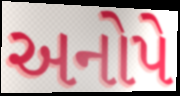
અનોપે